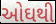
ઓઘથી